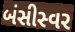
બંસીસ્વર